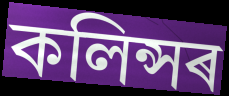
কলিন্সৰ